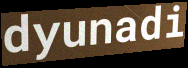
dyunadi